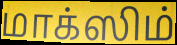
மாக்ஸிம்